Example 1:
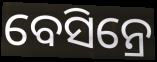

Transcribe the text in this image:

ବେସିନ୍ରେ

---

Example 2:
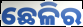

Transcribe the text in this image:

ଛେଳିର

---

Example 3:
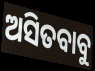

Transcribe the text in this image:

ଅସିତବାବୁ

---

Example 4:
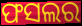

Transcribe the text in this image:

ଫସଲର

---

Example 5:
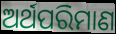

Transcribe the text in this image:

ଅର୍ଥପରିମାଣ